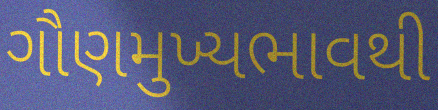
ગૌણમુખ્યભાવથી